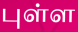
புள்ள